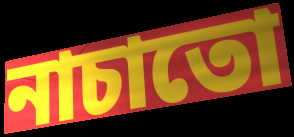
নাচাতো